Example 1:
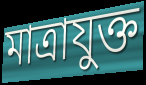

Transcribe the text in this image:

মাত্ৰাযুক্ত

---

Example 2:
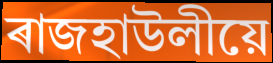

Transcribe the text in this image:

ৰাজহাউলীয়ে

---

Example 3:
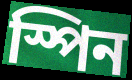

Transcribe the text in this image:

স্পিন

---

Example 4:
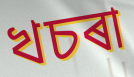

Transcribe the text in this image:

খচৰা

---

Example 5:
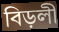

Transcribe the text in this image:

বিড়লী